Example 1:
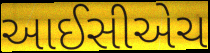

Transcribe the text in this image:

આઈસીએચ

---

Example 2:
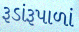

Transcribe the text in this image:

રૂડાંરૂપાળાં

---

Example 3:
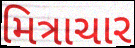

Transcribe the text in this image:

મિત્રાચાર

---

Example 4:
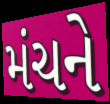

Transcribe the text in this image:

મંચને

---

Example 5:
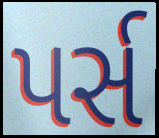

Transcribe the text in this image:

પર્સ